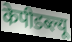
केपीडब्ल्यू